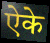
ऐके